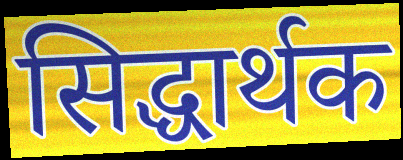
सिद्धार्थक